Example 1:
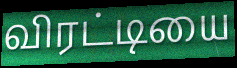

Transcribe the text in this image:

விரட்டியை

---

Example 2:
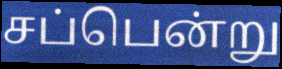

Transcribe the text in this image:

சப்பென்று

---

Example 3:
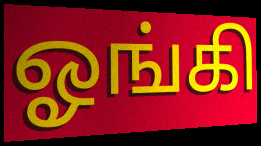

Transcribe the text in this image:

ஓங்கி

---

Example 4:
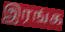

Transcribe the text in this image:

இரங்க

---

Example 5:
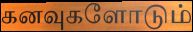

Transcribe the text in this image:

கனவுகளோடும்